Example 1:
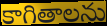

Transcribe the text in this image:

కాగితాలను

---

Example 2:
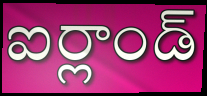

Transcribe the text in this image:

ఐర్లాండ్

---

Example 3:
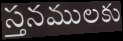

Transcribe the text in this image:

స్తనములకు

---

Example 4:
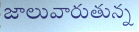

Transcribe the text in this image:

జాలువారుతున్న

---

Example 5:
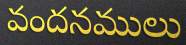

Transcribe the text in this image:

వందనములు